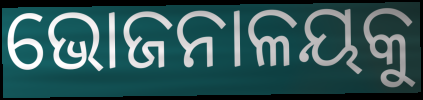
ଭୋଜନାଳୟକୁ